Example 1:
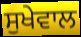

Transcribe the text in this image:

ਸੁਖੇਵਾਲ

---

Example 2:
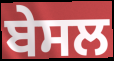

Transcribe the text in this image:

ਬੇਸਲ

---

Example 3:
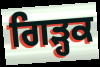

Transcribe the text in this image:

ਗਿੜ੍ਹਕ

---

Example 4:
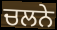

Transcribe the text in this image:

ਚਲਨੇ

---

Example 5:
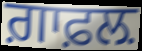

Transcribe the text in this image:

ਗ਼ਾਫ਼ਲ਼